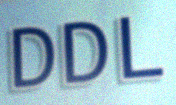
DDL